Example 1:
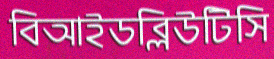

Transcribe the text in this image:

বিআইডব্লিউটিসি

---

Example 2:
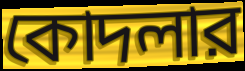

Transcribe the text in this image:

কোদলার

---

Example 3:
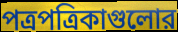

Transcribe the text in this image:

পত্রপত্রিকাগুলোর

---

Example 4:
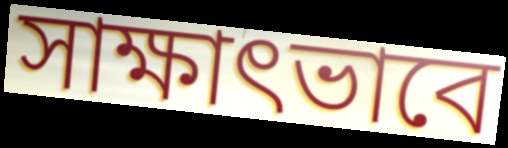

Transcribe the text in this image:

সাক্ষাৎভাবে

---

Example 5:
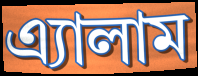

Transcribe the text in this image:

এ্যালাম